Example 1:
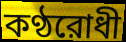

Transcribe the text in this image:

কণ্ঠরোধী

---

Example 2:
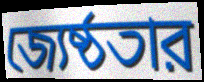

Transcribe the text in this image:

জ্যেষ্ঠতার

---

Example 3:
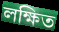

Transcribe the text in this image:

লক্ষিত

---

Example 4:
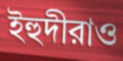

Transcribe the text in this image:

ইহুদীরাও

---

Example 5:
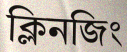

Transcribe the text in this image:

ক্লিনজিং